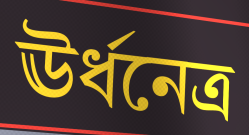
ঊর্ধনেত্র